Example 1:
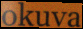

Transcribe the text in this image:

okuva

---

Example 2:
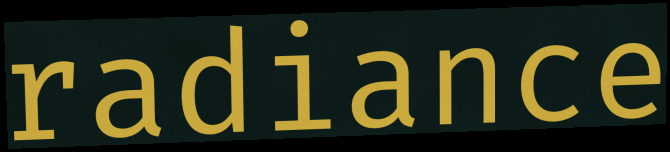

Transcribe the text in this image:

radiance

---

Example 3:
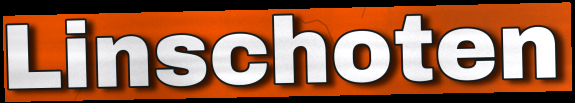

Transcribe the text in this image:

Linschoten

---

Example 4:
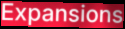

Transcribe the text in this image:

Expansions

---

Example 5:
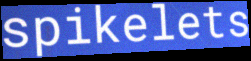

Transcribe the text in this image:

spikelets